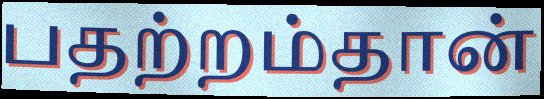
பதற்றம்தான்